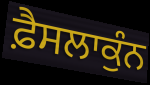
ਫ਼ੈਸਲਾਕੁੰਨ